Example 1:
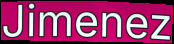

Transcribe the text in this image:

Jimenez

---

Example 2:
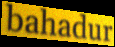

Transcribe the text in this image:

bahadur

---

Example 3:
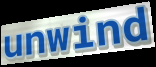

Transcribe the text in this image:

unwind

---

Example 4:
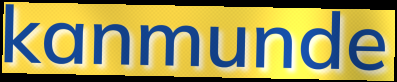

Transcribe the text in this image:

kanmunde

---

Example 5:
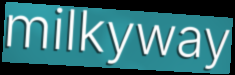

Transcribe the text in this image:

milkyway